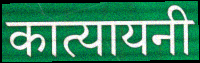
कात्यायनी